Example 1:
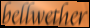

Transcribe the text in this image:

bellwether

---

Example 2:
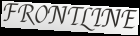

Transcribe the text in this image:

FRONTLINE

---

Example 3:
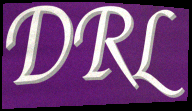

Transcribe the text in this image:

DRL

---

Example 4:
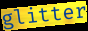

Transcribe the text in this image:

glitter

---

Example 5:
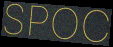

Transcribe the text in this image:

SPOC